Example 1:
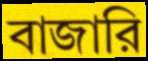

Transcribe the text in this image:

বাজারি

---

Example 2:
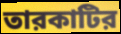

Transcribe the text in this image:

তারকাটির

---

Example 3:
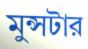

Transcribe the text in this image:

মুন্সটার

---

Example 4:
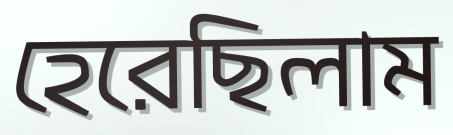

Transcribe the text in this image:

হেরেছিলাম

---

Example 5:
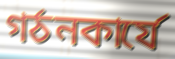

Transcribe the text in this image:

গঠনকার্যে